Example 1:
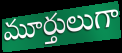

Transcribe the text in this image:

మూర్తులుగా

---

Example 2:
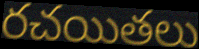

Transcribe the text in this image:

రచయితలు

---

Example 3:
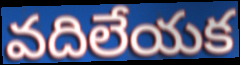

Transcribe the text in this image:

వదిలేయక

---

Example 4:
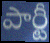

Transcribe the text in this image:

పార్టీ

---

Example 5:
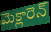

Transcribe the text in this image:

మెక్లారెన్